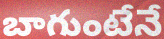
బాగుంటేనే